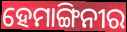
ହେମାଙ୍ଗିନୀର